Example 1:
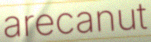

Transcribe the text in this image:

arecanut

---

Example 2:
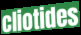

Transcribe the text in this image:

cliotides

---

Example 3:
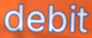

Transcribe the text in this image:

debit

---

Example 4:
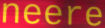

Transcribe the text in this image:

neere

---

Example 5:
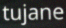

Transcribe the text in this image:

tujane